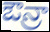
ఔన్రా